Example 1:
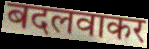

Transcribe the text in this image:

बदलवाकर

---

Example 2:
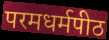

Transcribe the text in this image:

परमधर्मपीठ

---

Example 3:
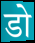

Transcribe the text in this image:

डो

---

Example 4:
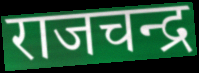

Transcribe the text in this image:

राजचन्द्र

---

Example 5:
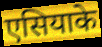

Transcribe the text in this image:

एसियाके